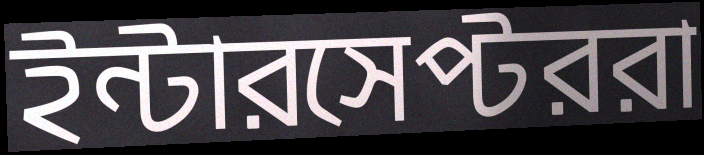
ইন্টারসেপ্টররা